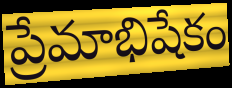
ప్రేమాభిషేకం